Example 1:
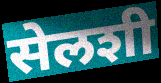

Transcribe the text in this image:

सेलशी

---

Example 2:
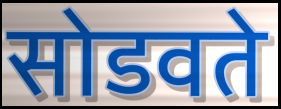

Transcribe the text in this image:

सोडवते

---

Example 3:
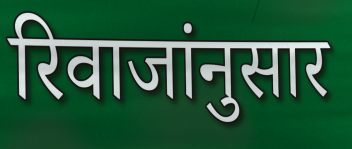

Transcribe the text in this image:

रिवाजांनुसार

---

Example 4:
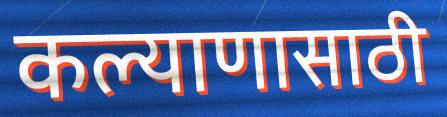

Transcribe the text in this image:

कल्याणासाठी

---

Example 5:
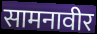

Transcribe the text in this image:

सामनावीर